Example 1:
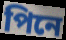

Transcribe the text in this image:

পিনে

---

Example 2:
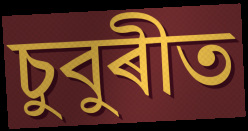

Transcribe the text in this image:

চুবুৰীত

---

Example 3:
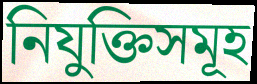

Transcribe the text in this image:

নিযুক্তিসমূহ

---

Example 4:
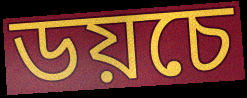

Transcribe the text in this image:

ডয়চে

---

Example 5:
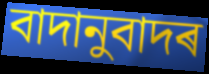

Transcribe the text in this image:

বাদানুবাদৰ